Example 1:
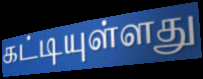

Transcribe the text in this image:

கட்டியுள்ளது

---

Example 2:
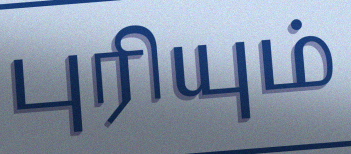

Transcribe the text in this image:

புரியும்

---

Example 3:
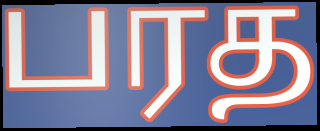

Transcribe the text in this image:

பரத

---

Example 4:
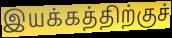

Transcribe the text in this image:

இயக்கத்திற்குச்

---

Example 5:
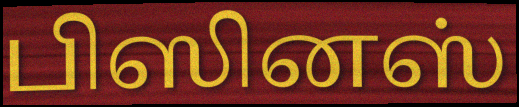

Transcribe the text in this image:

பிஸினஸ்